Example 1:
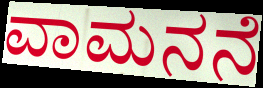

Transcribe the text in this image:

ವಾಮನನೆ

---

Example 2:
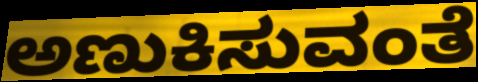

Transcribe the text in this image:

ಅಣುಕಿಸುವಂತೆ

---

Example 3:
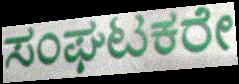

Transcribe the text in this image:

ಸಂಘಟಕರೇ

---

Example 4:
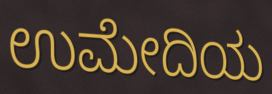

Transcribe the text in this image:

ಉಮೇದಿಯ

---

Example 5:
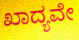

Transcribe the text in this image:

ಖಾದ್ಯವೇ